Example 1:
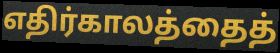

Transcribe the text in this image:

எதிர்காலத்தைத்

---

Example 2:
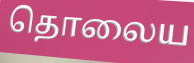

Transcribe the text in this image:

தொலைய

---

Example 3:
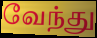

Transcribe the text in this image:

வேந்து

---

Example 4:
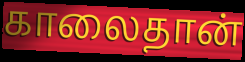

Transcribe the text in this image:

காலைதான்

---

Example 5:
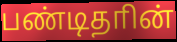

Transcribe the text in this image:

பண்டிதரின்